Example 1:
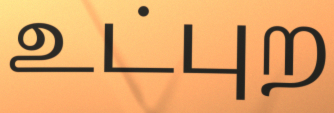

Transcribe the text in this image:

உட்புற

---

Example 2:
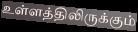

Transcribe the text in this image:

உள்ளத்திலிருக்கும்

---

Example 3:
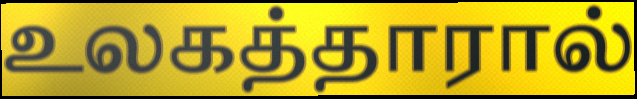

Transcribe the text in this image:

உலகத்தாரால்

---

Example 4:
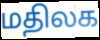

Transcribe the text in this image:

மதிலக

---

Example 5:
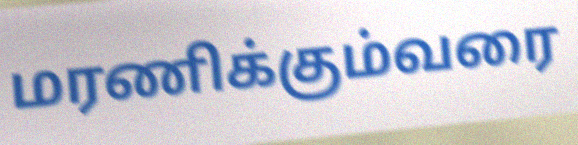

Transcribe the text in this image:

மரணிக்கும்வரை